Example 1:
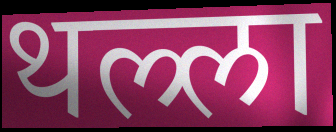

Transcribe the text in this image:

थल्ला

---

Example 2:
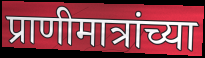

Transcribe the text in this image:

प्राणीमात्रांच्या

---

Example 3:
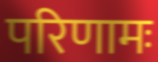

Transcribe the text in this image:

परिणामः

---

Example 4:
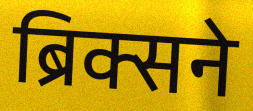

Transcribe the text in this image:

ब्रिक्सने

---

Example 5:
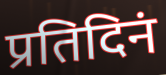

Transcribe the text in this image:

प्रतिदिनं